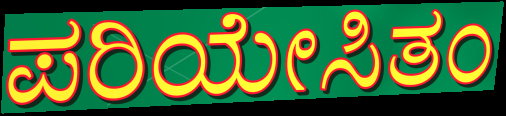
ಪರಿಯೇಸಿತಂ